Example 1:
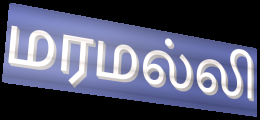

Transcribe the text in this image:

மரமல்லி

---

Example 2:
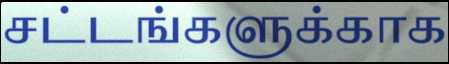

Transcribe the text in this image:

சட்டங்களுக்காக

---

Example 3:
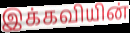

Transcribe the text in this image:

இக்கவியின்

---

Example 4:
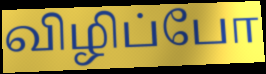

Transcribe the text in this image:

விழிப்போ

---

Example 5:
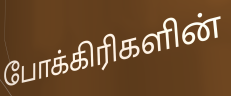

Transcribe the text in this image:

போக்கிரிகளின்